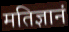
मतिज्ञानं